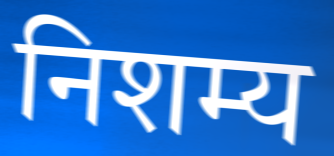
निशम्य